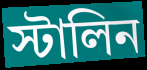
স্টালিন